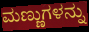
ಮಣ್ಣುಗಳನ್ನು